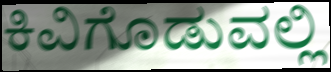
ಕಿವಿಗೊಡುವಲ್ಲಿ